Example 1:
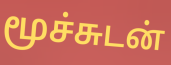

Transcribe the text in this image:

மூச்சுடன்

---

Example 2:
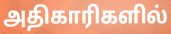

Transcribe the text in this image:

அதிகாரிகளில்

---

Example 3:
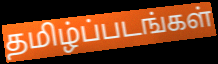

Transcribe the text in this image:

தமிழ்ப்படங்கள்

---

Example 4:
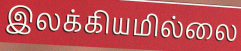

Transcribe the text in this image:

இலக்கியமில்லை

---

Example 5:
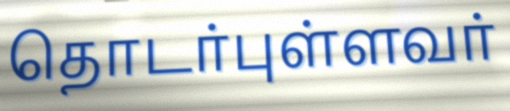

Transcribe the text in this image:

தொடர்புள்ளவர்